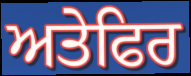
ਅਤੇਫਿਰ